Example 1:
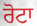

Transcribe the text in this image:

ਰੋਟਾ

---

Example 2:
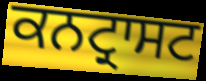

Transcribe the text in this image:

ਕਨਟ੍ਰਾਸਟ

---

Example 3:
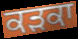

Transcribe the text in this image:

ਕੜਕਾ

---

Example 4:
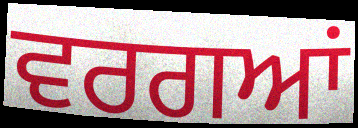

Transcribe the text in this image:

ਵਰਗਆਂ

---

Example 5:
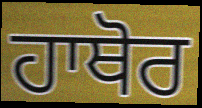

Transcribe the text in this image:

ਹਾਥੋਰ